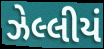
ઝેલ્લીયં